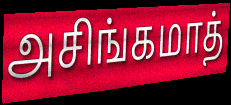
அசிங்கமாத்